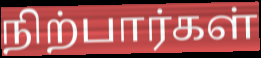
நிற்பார்கள்